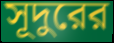
সূদুরের